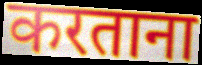
करताना